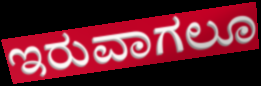
ಇರುವಾಗಲೂ